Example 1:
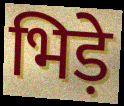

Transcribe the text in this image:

भिड़े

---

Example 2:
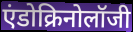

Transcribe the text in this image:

एंडोक्रिनोलॉजी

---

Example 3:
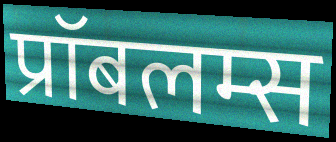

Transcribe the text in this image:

प्रॉबलम्स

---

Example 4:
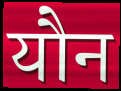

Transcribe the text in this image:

यौन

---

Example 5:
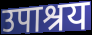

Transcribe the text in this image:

उपाश्रय